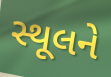
સ્થૂલને